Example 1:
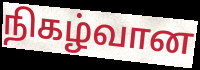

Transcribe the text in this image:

நிகழ்வான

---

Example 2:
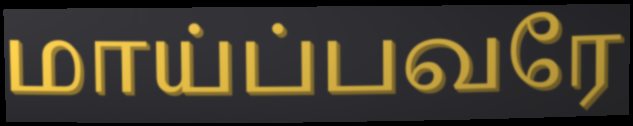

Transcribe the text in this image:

மாய்ப்பவரே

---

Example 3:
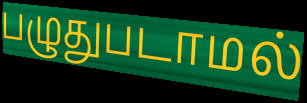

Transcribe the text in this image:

பழுதுபடாமல்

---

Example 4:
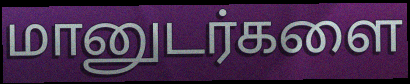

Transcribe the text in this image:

மானுடர்களை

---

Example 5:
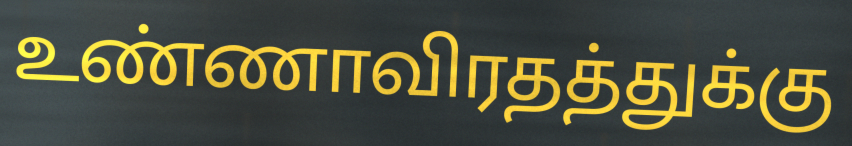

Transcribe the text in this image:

உண்ணாவிரதத்துக்கு